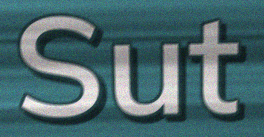
Sut